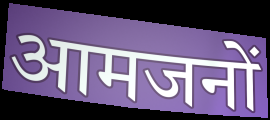
आमजनों